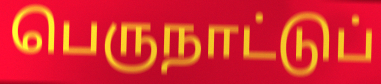
பெருநாட்டுப்